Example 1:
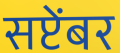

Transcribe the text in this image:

सप्टेंबर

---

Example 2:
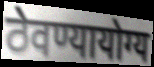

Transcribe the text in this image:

ठेवण्यायोग्य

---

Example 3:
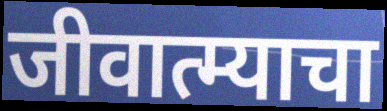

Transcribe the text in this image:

जीवात्म्याचा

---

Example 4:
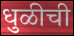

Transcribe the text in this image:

धुळीची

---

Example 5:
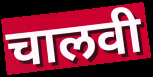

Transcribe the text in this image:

चालवी